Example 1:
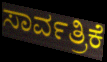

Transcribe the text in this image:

ಸಾರ್ವತ್ರಿಕೆ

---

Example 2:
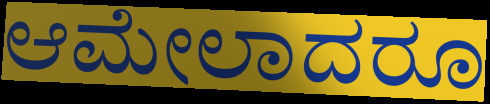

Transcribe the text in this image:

ಆಮೇಲಾದರೂ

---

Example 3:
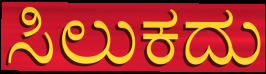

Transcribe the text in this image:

ಸಿಲುಕದು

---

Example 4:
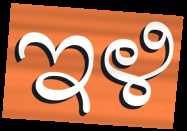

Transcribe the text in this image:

ಇಳಿ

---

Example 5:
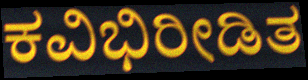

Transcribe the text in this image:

ಕವಿಭಿರೀಡಿತ